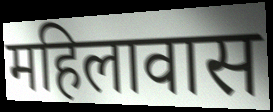
महिलावास